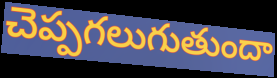
చెప్పగలుగుతుందా